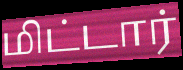
மிட்டார்